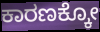
ಕಾರಣಕ್ಕೋ